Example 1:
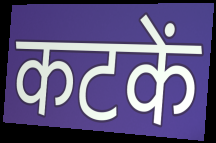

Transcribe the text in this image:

कटकें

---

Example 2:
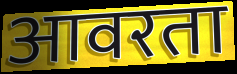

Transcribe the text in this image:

आवरता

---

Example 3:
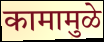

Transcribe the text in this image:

कामामुळे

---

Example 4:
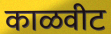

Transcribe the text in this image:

काळवीट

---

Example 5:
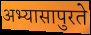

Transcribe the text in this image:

अभ्यासापुरते